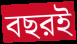
বছরই